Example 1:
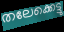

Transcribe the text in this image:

തലേക്കെട്ടു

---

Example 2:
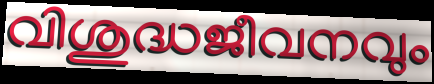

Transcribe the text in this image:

വിശുദ്ധജീവനവും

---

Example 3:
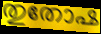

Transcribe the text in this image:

തുതോഷ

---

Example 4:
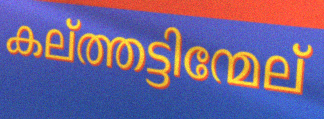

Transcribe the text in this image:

കല്ത്തട്ടിന്മേല്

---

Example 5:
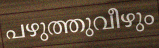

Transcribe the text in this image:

പഴുത്തുവീഴും